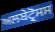
ਅਲਬੇਟ੍ਰੋਸਸ